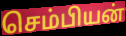
செம்பியன்